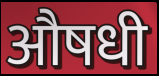
औषधी